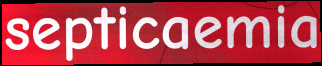
septicaemia